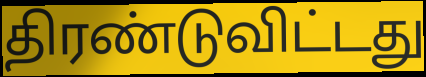
திரண்டுவிட்டது